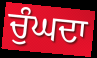
ਚੁੰਘਦਾ